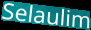
Selaulim